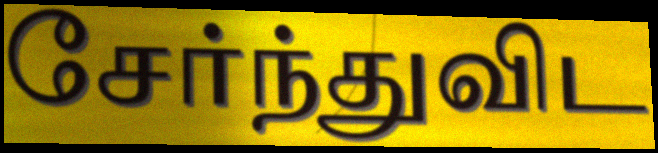
சேர்ந்துவிட